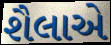
શૈલાએ